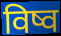
विष्व